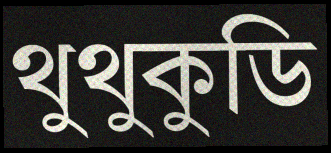
থুথুকুডি